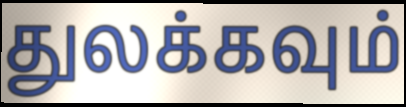
துலக்கவும்